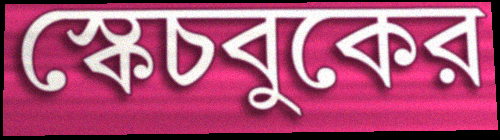
স্কেচবুকের